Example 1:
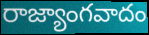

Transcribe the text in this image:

రాజ్యాంగవాదం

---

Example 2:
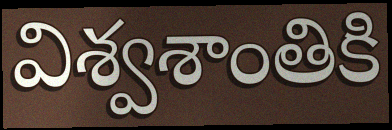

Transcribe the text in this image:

విశ్వశాంతికి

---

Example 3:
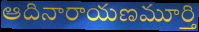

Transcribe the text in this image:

ఆదినారాయణమూర్తి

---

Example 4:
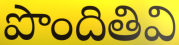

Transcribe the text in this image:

పొందితివి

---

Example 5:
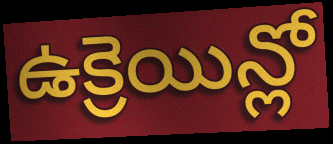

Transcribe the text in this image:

ఉక్రెయిన్లో